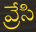
వ్రేసి